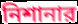
নিশানার